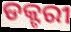
ଡକ୍ଟରୀ